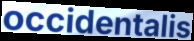
occidentalis